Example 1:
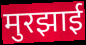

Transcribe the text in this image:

मुरझाई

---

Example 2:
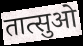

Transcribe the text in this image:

तात्सुओ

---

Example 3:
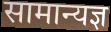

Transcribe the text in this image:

सामान्यज्ञ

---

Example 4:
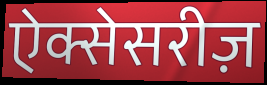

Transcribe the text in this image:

ऐक्सेसरीज़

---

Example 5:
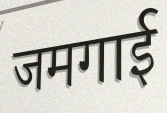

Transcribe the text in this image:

जमगाई